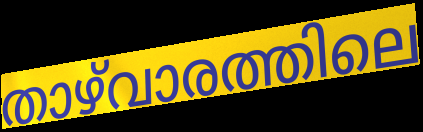
താഴ്‌വാരത്തിലെ